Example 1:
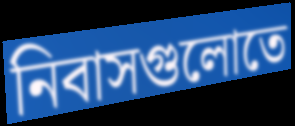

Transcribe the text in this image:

নিবাসগুলোতে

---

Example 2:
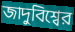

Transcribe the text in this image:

জাদুবিশ্বের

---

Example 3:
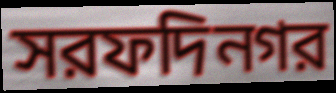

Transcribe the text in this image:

সরফদিনগর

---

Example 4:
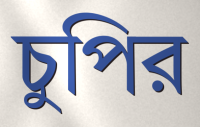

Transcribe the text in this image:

চুপির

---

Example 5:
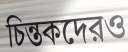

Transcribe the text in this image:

চিন্তকদেরও